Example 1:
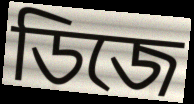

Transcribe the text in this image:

ডিজে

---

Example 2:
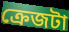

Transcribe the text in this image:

ক্রেজটা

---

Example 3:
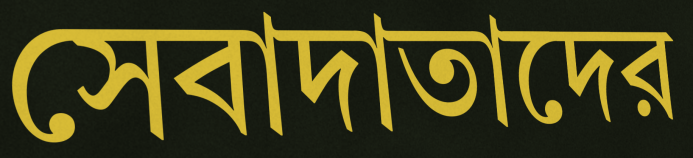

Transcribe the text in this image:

সেবাদাতাদের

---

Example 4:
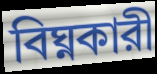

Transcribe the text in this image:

বিঘ্নকারী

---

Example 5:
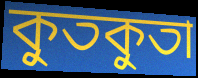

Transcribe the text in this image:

কুতকুতা